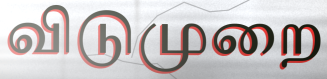
விடுமுறை